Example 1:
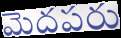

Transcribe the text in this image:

మెదపరు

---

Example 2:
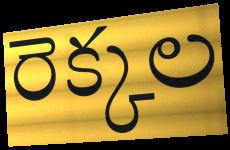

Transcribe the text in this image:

రెక్కల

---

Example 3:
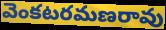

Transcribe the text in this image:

వెంకటరమణరావు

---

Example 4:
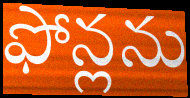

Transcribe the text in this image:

ఫోన్లను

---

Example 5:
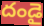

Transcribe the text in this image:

దండై